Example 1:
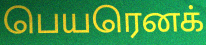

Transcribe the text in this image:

பெயரெனக்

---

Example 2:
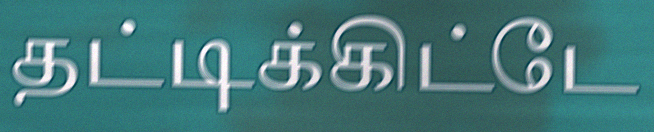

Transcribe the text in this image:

தட்டிக்கிட்டே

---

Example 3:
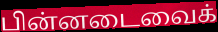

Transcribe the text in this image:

பின்னடைவைக்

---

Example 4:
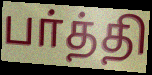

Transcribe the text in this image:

பர்த்தி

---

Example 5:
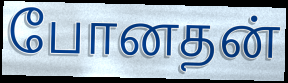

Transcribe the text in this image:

போனதன்